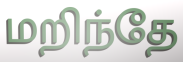
மறிந்தே